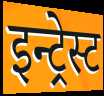
इन्ट्रेस्ट